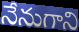
నేనుగాని